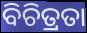
ବିଚିତ୍ରତା